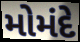
મોમંદે